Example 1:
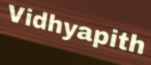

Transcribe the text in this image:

Vidhyapith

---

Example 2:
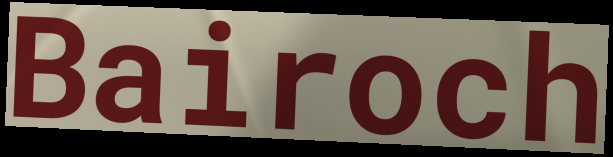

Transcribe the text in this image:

Bairoch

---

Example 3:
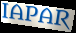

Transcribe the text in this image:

IAPAR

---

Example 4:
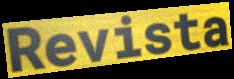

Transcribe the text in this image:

Revista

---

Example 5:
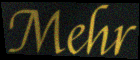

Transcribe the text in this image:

Mehr